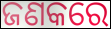
ଜଣକରେ